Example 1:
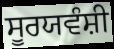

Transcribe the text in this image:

ਸੂਰਯਵੰਸ਼ੀ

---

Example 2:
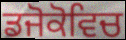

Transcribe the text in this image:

ਡਜੋਕੋਵਿਚ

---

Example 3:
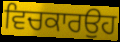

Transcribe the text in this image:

ਵਿਚਕਾਰਉਹ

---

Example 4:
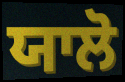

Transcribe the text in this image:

ਯਾਲੋ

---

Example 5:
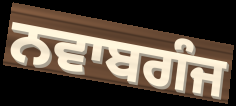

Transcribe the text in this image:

ਨਵਾਬਗੰਜ